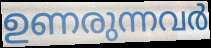
ഉണരുന്നവർ